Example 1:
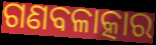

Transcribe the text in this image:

ଗଣବଳାତ୍କାର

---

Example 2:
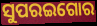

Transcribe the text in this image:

ସୁପରଇଗୋର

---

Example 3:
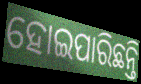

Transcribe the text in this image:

ହୋଇପାରିଛନ୍ତି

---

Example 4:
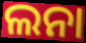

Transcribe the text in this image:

ଲନା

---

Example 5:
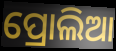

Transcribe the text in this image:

ପ୍ରୋଲିଆ